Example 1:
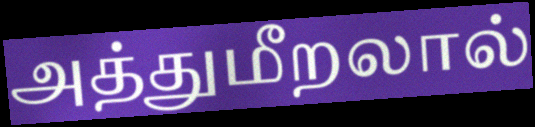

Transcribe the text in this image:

அத்துமீறலால்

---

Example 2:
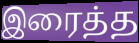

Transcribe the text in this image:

இரைத்த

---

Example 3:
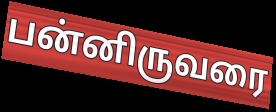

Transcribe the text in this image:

பன்னிருவரை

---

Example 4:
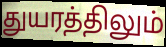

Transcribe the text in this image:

துயரத்திலும்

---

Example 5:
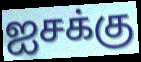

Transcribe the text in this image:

ஐசக்கு